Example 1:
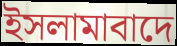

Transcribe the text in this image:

ইসলামাবাদে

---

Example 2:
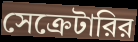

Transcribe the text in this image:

সেক্রেটারির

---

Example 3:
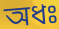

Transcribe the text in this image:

অধঃ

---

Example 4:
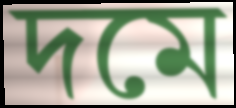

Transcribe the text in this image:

দমে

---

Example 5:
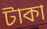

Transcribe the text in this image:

টাকা